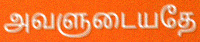
அவளுடையதே